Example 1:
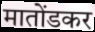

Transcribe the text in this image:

मातोंडकर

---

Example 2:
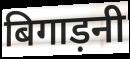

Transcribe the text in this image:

बिगाड़नी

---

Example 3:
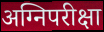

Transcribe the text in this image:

अग्निपरीक्षा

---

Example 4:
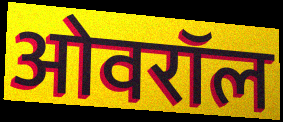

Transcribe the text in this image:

ओवरॉल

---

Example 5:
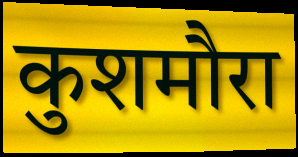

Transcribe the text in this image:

कुशमौरा